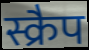
स्क्रैप